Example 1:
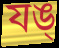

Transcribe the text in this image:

যঙ্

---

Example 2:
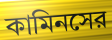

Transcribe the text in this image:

কামিনসের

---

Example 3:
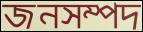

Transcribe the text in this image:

জনসম্পদ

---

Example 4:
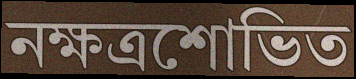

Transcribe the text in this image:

নক্ষত্রশোভিত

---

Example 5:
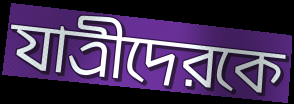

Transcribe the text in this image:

যাত্রীদেরকে